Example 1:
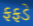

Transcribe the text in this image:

ફફડે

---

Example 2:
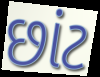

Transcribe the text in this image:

છાંટ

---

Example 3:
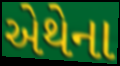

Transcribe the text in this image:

એથેના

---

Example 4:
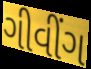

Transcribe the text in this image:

ગીવીંગ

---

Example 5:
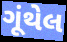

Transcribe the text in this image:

ગૂંથેલ